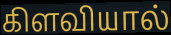
கிளவியால்